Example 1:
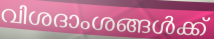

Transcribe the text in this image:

വിശദാംശങ്ങൾക്ക്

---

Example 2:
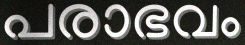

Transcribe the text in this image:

പരാഭവം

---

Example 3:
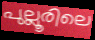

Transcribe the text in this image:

പുല്ലൂരിലെ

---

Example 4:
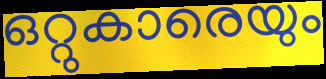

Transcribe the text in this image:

ഒറ്റുകാരെയും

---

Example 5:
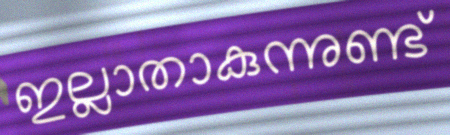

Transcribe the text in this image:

ഇല്ലാതാകുന്നുണ്ട്